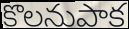
కొలనుపాక